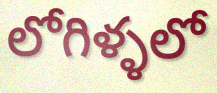
లోగిళ్ళలో